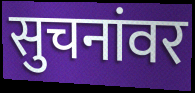
सुचनांवर